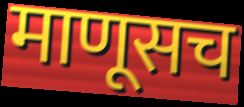
माणूसच